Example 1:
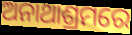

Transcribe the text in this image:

ଅନାଥାଶ୍ରମରେ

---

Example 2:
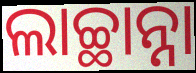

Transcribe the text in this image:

ଲାଚ୍ଛାନ୍ନା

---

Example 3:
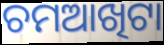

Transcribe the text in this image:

ଚମଆଖିଟା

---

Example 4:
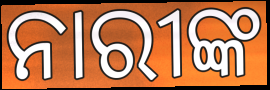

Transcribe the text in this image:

ନାରୀଙ୍କ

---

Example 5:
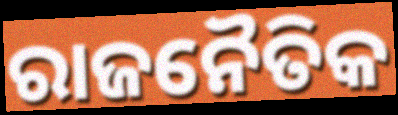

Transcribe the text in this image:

ରାଜନୈତିକ